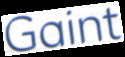
Gaint